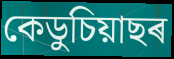
কেডুচিয়াছৰ